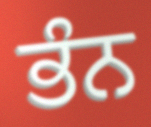
ਭੰਨ